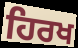
ਹਿਰਖ